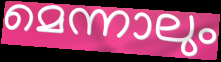
മെന്നാലും